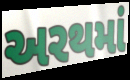
અરથમાં